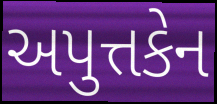
અપુત્તકેન